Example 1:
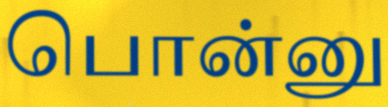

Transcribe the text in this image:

பொன்னு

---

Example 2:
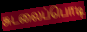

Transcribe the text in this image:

சுடலைப்பொடி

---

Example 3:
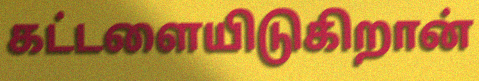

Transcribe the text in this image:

கட்டளையிடுகிறான்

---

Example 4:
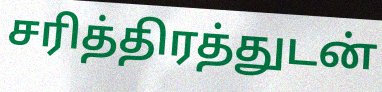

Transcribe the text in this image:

சரித்திரத்துடன்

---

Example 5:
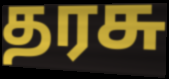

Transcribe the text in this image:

தரசு